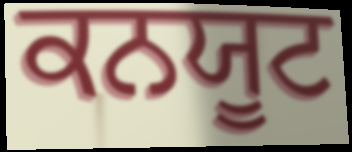
ਕਨਯੂਟ